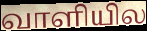
வாளியில